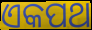
ଏକପଥ